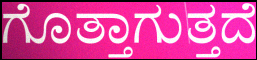
ಗೊತ್ತಾಗುತ್ತದೆ